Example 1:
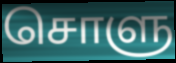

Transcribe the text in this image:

சொளு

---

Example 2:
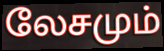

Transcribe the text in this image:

லேசமும்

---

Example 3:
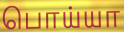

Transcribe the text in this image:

பொய்யா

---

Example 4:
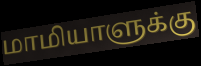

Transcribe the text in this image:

மாமியாளுக்கு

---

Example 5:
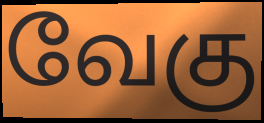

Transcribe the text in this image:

வேகு